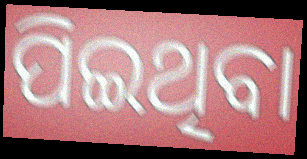
ପିଇଥିବା